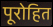
पूरोहित